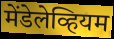
मेंडेलेव्हियम